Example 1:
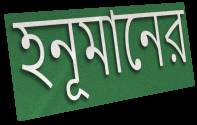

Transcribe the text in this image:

হনূমানের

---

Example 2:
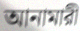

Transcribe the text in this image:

আনামারী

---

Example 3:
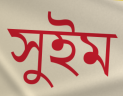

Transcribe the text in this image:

সুইম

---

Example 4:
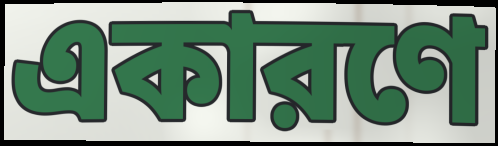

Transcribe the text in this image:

একারণে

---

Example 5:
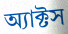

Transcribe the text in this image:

অ্যাক্টস